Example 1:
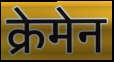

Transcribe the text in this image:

क्रेमेन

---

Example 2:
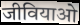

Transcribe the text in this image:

जीवियाओ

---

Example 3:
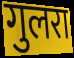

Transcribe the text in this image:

गुलरा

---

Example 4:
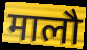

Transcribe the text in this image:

मालौ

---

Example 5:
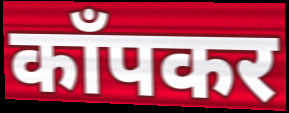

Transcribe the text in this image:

काँपकर